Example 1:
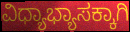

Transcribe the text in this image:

ವಿಧ್ಯಾಭ್ಯಾಸಕ್ಕಾಗಿ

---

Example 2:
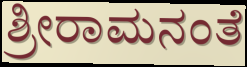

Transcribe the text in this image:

ಶ್ರೀರಾಮನಂತೆ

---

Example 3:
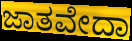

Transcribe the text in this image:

ಜಾತವೇದಾ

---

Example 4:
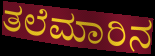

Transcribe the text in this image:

ತಲೆಮಾರಿನ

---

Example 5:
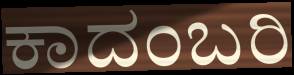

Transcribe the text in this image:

ಕಾದಂಬರಿ